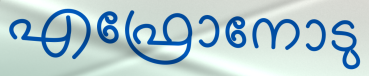
എഫ്രോനോടു